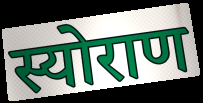
स्योराण